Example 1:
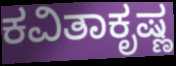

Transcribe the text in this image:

ಕವಿತಾಕೃಷ್ಣ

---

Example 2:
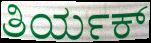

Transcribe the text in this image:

ತಿರ್ಯಕ್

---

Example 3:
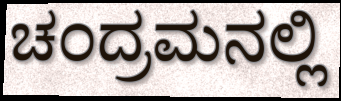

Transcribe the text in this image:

ಚಂದ್ರಮನಲ್ಲಿ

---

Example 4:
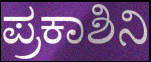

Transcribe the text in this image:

ಪ್ರಕಾಶಿನಿ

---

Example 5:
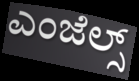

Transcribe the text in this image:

ಎಂಜೆಲ್ಸ್